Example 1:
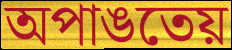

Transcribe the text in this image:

অপাঙতেয়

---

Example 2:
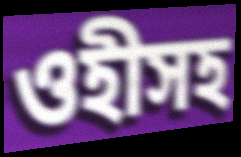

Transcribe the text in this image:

ওহীসহ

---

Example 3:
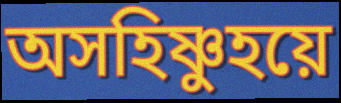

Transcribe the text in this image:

অসহিষ্ণুহয়ে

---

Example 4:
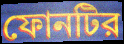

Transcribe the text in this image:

ফোনটির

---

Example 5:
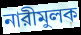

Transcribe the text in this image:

নারীমুলক